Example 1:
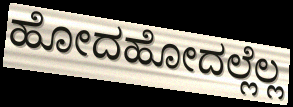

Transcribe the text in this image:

ಹೋದಹೋದಲ್ಲೆಲ್ಲ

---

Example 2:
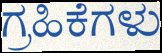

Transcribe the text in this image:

ಗ್ರಹಿಕೆಗಳು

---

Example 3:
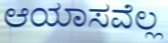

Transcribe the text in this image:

ಆಯಾಸವೆಲ್ಲ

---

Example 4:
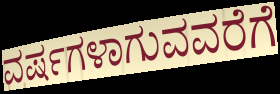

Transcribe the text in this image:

ವರ್ಷಗಳಾಗುವವರೆಗೆ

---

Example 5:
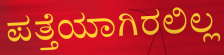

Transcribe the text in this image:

ಪತ್ತೆಯಾಗಿರಲಿಲ್ಲ